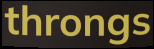
throngs